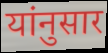
यांनुसार